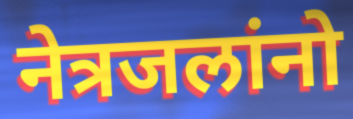
नेत्रजलांनो